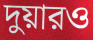
দুয়ারও